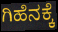
ಗಿಹೆನಕ್ಕೆ